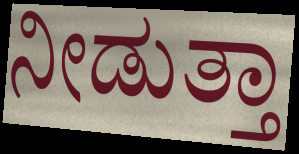
ನೀಡುತ್ತಾ